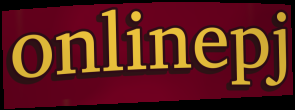
onlinepj